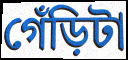
গেঁড়িটা